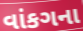
વાંકગના